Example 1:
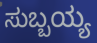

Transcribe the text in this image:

ಸುಬ್ಬಯ್ಯ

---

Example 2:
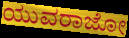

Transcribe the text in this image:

ಯುವರಾಜೋ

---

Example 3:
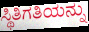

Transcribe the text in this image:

ಸ್ಥಿತಿಗತಿಯನ್ನು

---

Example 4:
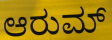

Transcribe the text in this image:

ಆರುಮ್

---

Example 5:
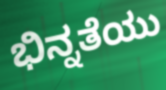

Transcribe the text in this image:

ಭಿನ್ನತೆಯು